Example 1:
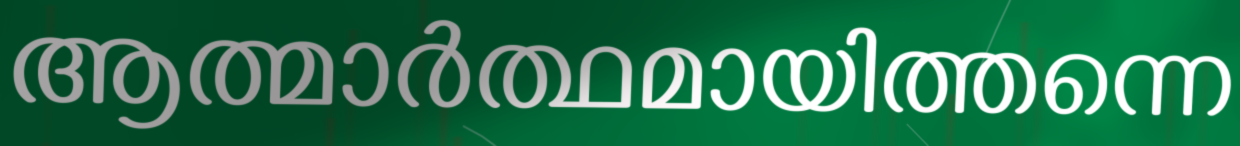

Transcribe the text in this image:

ആത്മാർത്ഥമായിത്തന്നെ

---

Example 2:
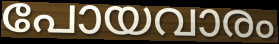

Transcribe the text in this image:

പോയവാരം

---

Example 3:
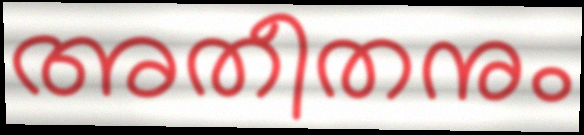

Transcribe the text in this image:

അതീതനും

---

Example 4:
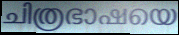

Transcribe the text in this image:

ചിത്രഭാഷയെ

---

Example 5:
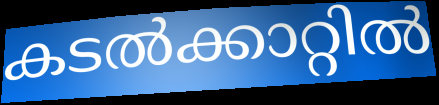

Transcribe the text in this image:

കടൽക്കാറ്റിൽ